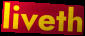
liveth